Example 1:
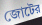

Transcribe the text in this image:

জোটের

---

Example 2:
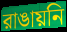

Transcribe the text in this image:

রাঙায়নি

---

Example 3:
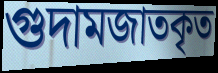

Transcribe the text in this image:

গুদামজাতকৃত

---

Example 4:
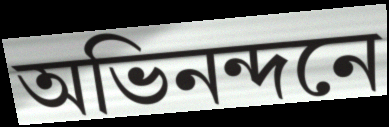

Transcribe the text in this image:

অভিনন্দনে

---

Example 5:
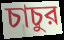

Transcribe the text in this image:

চাচুর